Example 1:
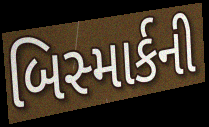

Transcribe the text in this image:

બિસ્માર્કની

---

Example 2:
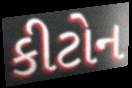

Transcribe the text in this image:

કીટોન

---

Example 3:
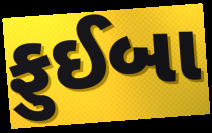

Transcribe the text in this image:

ફુઈબા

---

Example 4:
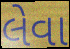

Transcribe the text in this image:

લેવા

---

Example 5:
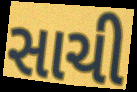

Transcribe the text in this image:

સાચી